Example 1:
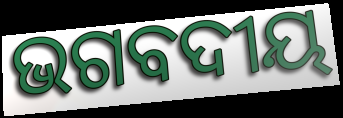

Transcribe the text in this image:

ଭଗବଦୀୟ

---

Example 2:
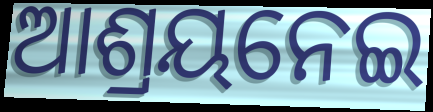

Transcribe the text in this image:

ଆଶ୍ରୟନେଇ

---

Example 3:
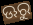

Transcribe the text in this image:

ଊରୁ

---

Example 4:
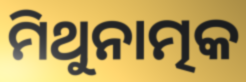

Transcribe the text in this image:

ମିଥୁନାତ୍ମକ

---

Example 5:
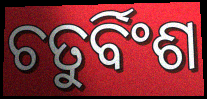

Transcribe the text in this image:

ଚତୁର୍ବିଂଶ